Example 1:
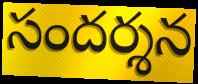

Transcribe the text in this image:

సందర్శన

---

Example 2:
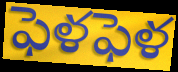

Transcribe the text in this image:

ఫెళఫెళ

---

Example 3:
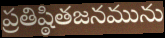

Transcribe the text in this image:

ప్రతిష్ఠితజనమును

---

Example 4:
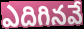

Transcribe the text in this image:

ఎదిగినవే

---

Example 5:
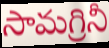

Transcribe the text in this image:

సామగ్రినీ